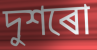
দুশৰো